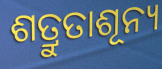
ଶତ୍ରୁତାଶୂନ୍ୟ